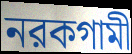
নরকগামী